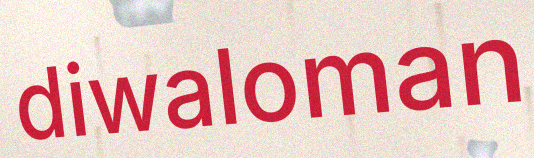
diwaloman